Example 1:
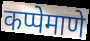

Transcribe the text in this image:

कप्पेमाणे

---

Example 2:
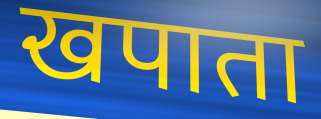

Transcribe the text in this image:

खपाता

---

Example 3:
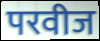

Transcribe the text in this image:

परवीज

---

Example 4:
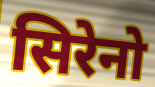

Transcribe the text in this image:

सिरेनो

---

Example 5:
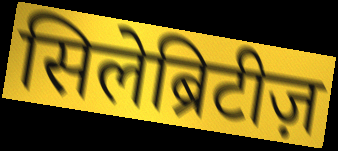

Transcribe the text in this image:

सिलेब्रिटीज़